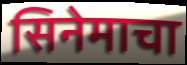
सिनेमाचा